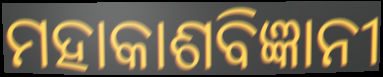
ମହାକାଶବିଜ୍ଞାନୀ